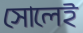
সোলেই